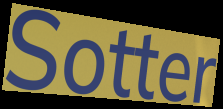
Sotter